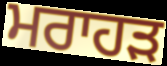
ਮਰਾਹੜ